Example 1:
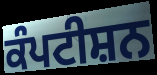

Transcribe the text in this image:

ਕੰਪਟੀਸ਼ਨ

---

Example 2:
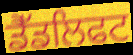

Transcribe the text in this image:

ਡੈੱਡਲਿਫਟ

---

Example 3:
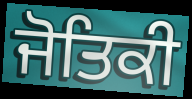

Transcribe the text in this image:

ਜੋਤਿਕੀ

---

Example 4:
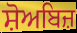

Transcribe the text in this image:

ਸ਼ੋਅਬਿਜ਼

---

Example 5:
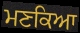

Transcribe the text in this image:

ਮਣਕਿਆ